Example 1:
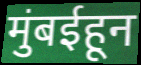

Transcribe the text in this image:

मुंबईहून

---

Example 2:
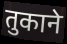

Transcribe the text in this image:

तुकाने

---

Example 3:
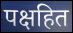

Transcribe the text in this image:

पक्षहित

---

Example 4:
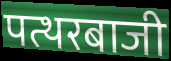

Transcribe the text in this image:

पत्थरबाजी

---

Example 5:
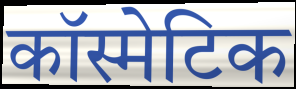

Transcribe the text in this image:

कॉस्मेटिक